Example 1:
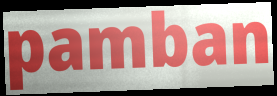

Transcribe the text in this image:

pamban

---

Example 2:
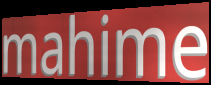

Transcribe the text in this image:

mahime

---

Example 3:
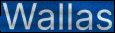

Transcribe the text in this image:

Wallas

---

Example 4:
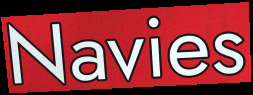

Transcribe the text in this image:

Navies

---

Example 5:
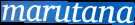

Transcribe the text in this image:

marutana